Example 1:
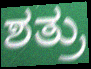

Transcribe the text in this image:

ಶತ್ರು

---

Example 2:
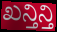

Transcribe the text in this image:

ಖನ್ತಿನ್ತಿ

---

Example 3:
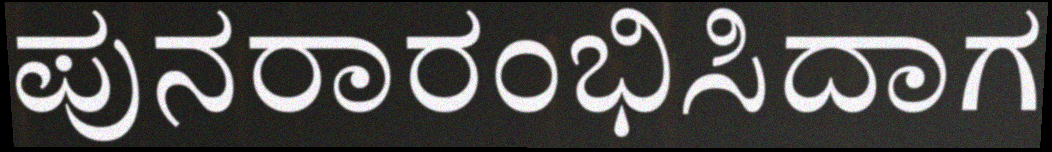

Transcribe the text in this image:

ಪುನರಾರಂಭಿಸಿದಾಗ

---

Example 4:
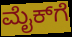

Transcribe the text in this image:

ಮೈಕ್‌ಗೆ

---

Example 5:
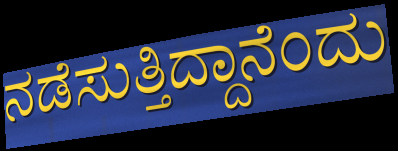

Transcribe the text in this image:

ನಡೆಸುತ್ತಿದ್ದಾನೆಂದು